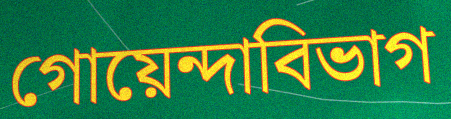
গোয়েন্দাবিভাগ